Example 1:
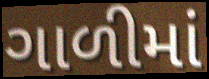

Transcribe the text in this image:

ગાળીમાં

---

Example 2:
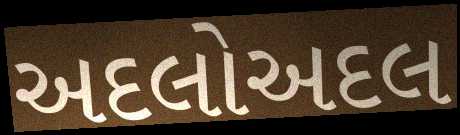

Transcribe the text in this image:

અદલોઅદલ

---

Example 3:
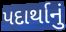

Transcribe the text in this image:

પદાર્થાનું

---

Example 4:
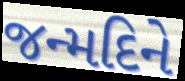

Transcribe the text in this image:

જન્મદિને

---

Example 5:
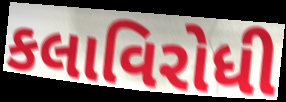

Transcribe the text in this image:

કલાવિરોધી